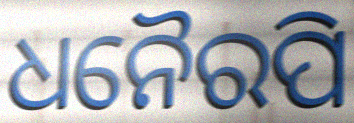
ଧନୈରପି